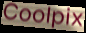
Coolpix